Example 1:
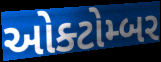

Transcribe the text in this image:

ઓક્ટોમ્બર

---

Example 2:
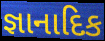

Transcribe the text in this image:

જ્ઞાનાદિક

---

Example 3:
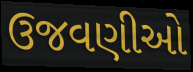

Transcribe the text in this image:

ઉજવણીઓ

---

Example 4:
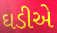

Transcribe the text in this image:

ઘડીએ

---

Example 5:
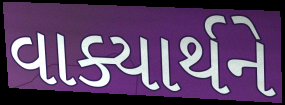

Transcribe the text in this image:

વાક્યાર્થને